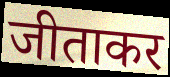
जीताकर